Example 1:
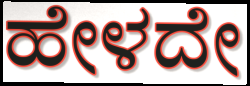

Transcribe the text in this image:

ಹೇಳದೇ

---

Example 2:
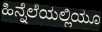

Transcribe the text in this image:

ಹಿನ್ನೆಲೆಯಲ್ಲಿಯೂ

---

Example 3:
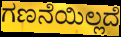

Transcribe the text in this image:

ಗಣನೆಯಿಲ್ಲದೆ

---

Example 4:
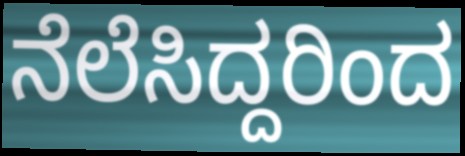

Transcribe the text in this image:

ನೆಲೆಸಿದ್ದರಿಂದ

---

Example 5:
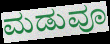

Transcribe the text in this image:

ಮಡುವೂ